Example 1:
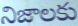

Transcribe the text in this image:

నిజాలకు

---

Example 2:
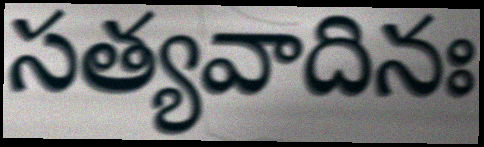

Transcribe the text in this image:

సత్యవాదినః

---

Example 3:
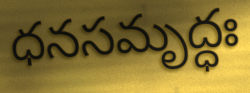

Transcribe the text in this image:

ధనసమృద్ధః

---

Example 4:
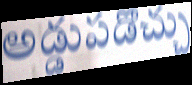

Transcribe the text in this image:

అడ్డుపడొచ్చు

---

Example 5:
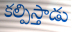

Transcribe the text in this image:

కల్పిస్తాడు